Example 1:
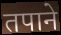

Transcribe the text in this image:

तपाने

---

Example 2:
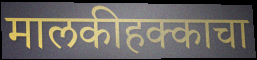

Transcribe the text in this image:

मालकीहक्काचा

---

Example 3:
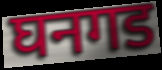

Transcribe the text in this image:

घनगड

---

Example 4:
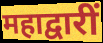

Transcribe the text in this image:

महाद्वारीं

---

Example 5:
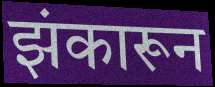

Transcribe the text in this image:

झंकारून